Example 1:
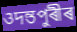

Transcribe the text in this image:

ওদন্তপুৰীৰ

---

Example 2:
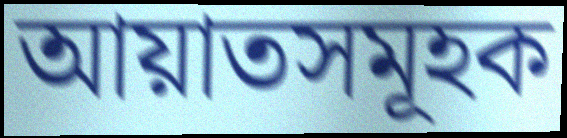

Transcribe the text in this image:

আয়াতসমূহক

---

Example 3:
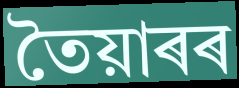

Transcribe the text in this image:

তৈয়াৰৰ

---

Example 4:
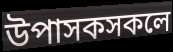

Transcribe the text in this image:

উপাসকসকলে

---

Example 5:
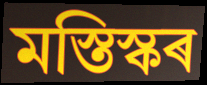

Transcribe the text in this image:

মস্তিস্কৰ